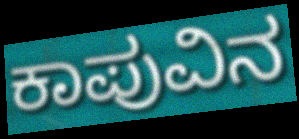
ಕಾಪುವಿನ